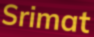
Srimat